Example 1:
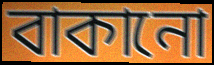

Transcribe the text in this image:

বাকানো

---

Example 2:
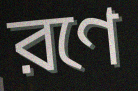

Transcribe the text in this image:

রণে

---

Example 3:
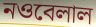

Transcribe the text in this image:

নওবেলাল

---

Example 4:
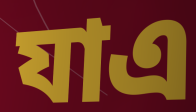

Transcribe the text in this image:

যাএ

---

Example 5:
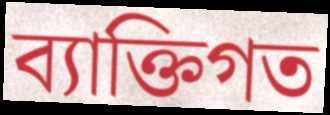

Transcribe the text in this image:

ব্যাক্তিগত